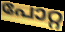
പോറ്റ